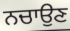
ਨਚਾਉਣ